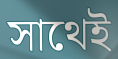
সাথেই